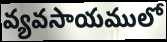
వ్యవసాయములో